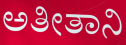
ಅತೀತಾನಿ